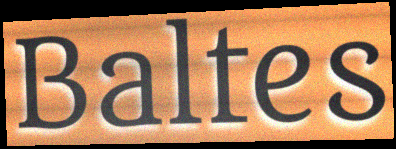
Baltes